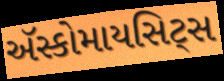
ઍસ્કોમાયસિટ્સ